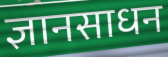
ज्ञानसाधन